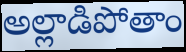
అల్లాడిపోతాం